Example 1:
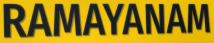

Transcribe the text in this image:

RAMAYANAM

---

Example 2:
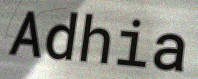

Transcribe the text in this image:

Adhia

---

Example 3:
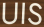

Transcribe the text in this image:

UIS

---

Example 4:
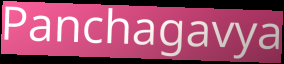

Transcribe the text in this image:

Panchagavya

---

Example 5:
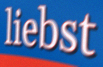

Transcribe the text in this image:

liebst